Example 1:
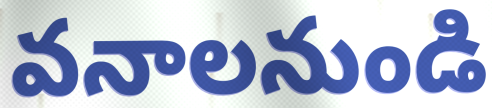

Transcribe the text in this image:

వనాలనుండి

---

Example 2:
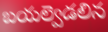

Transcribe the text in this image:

బయల్వెడలిన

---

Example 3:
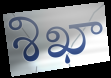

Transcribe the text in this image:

శిఖా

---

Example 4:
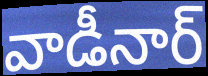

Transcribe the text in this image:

వాడీనార్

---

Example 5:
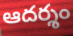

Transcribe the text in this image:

ఆదర్శం